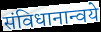
संविधानान्वये